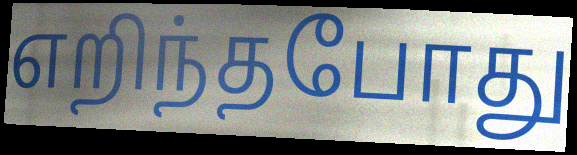
எறிந்தபோது